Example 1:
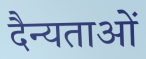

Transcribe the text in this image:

दैन्यताओं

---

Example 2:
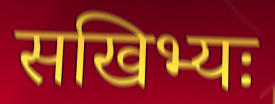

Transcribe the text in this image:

सखिभ्यः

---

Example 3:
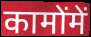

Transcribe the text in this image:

कामोंमें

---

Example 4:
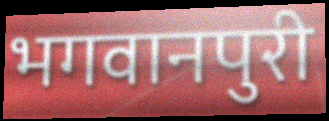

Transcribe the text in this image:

भगवानपुरी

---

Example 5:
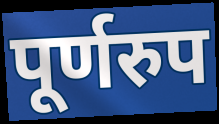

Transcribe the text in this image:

पूर्णरुप